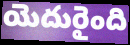
యెదురైంది